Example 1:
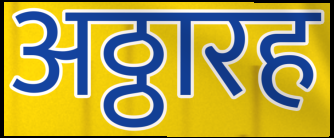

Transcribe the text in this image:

अठ्ठारह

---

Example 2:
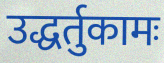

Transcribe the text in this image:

उद्धर्तुकामः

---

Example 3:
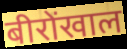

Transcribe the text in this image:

बीरोंखाल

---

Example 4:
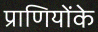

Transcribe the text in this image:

प्राणियोंके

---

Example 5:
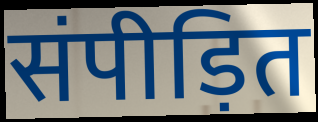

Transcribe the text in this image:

संपीड़ित